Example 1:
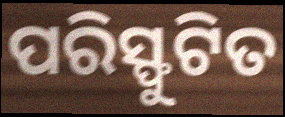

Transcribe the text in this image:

ପରିସ୍ଫୁଟିତ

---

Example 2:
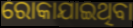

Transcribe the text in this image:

ରୋକାଯାଇଥିବା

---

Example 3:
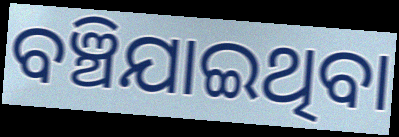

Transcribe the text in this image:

ବଞ୍ଚିଯାଇଥିବା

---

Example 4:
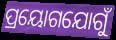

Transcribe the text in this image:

ପ୍ରୟୋଗଯୋଗୁଁ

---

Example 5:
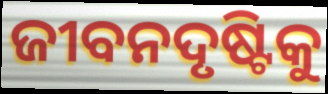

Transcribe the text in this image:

ଜୀବନଦୃଷ୍ଟିକୁ